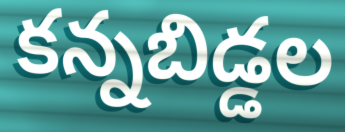
కన్నబిడ్డల